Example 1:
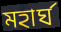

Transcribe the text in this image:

মহার্ঘ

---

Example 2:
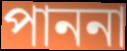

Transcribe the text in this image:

পাননা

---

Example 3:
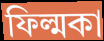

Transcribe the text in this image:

ফিল্মকা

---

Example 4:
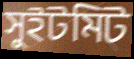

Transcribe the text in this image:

সুইটমিট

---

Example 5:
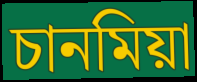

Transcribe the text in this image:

চানমিয়া